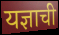
यज्ञाची